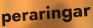
peraringar